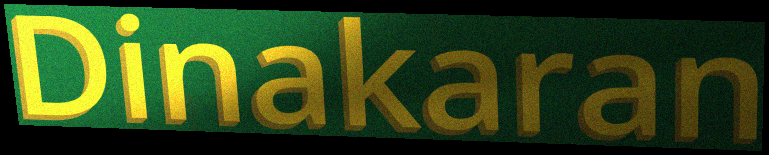
Dinakaran